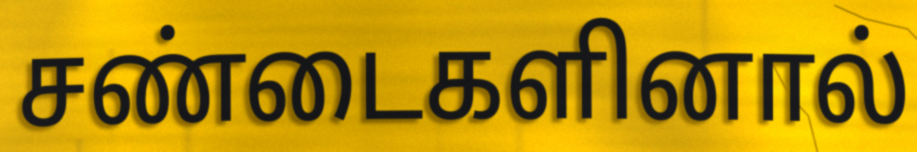
சண்டைகளினால்